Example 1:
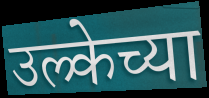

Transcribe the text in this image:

उल्केच्या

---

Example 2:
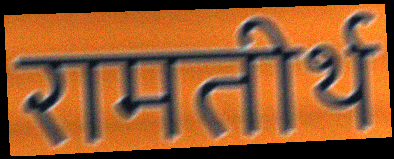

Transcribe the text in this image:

रामतीर्थ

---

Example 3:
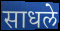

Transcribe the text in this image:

साधले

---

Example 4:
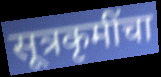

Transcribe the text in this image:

सूत्रकृमींचा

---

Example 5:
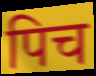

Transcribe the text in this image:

पिच